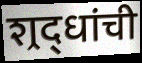
श्रद्धांची